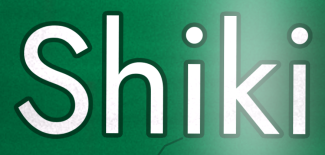
Shiki